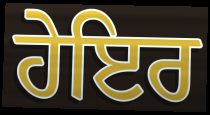
ਹੇਇਰ